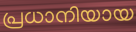
പ്രധാനിയായ